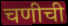
चणीची